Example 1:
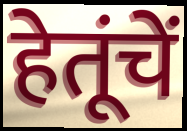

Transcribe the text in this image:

हेतूंचें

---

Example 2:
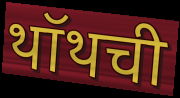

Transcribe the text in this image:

थॉथची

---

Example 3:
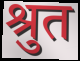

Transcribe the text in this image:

श्रुत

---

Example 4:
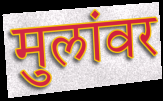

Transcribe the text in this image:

मुलांवर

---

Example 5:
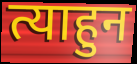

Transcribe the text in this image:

त्याहुन